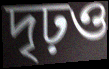
দৃঢ়ও